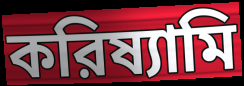
করিষ্যামি